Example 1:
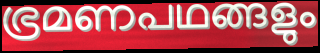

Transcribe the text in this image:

ഭ്രമണപഥങ്ങളും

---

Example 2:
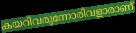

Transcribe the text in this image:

കയറിവരുന്നോരിവളാരാണ്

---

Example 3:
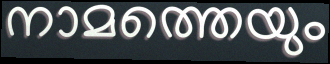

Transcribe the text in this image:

നാമത്തെയും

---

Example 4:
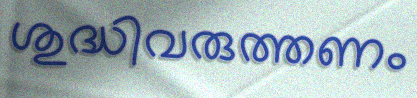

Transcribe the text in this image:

ശുദ്ധിവരുത്തണം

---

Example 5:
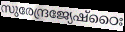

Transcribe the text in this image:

സുരേന്ദ്രജ്യേഷ്ഠൈഃ